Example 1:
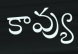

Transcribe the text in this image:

కావ్యు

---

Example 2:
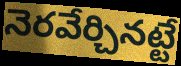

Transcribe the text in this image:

నెరవేర్చినట్టే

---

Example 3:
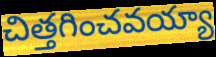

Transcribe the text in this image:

చిత్తగించవయ్యా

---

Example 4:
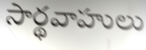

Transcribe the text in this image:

సార్థవాహులు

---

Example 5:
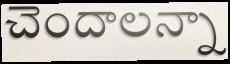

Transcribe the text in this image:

చెందాలన్నా